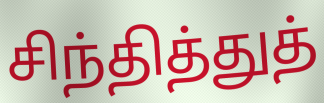
சிந்தித்துத்